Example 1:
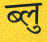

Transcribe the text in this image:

ब्लु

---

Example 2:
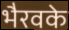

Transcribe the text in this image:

भैरवके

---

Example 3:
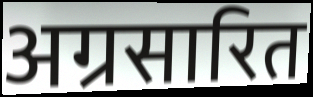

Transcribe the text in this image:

अग्रसारित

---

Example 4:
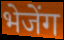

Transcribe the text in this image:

भेजेंग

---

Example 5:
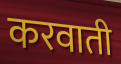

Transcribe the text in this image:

करवाती